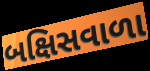
બક્ષિસવાળા